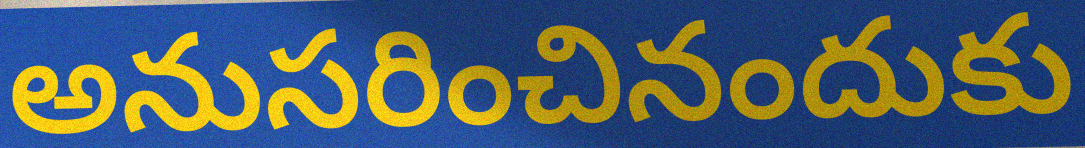
అనుసరించినందుకు